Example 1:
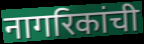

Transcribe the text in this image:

नागरिकांची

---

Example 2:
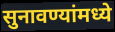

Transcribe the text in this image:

सुनावण्यांमध्ये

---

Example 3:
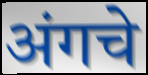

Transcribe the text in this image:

अंगचे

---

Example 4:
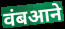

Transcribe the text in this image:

वंबआने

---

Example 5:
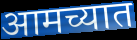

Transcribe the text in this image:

आमच्यात